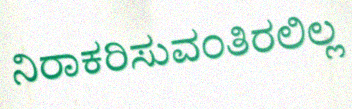
ನಿರಾಕರಿಸುವಂತಿರಲಿಲ್ಲ